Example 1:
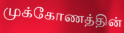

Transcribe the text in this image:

முக்கோணத்தின்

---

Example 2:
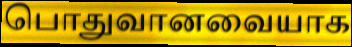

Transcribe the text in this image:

பொதுவானவையாக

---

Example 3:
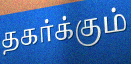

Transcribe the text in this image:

தகர்க்கும்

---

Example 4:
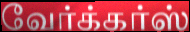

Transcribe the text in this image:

வேர்க்கர்ஸ்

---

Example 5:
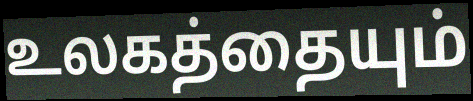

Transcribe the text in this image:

உலகத்தையும்